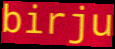
birju